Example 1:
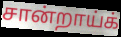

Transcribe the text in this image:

சான்றாய்க்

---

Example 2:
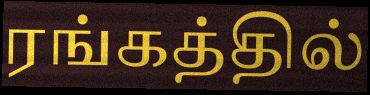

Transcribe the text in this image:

ரங்கத்தில்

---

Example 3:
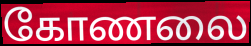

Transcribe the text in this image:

கோணலை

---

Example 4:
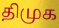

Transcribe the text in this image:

திமுக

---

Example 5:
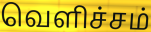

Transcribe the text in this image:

வெளிச்சம்